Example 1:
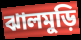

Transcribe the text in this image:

ঝালমুড়ি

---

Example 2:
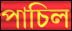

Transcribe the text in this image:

পাচিল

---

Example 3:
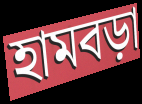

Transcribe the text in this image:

হামবড়া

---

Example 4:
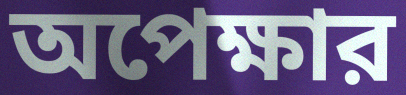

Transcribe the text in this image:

অপেক্ষার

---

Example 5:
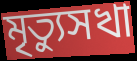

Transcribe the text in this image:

মৃত্যুসখা